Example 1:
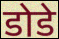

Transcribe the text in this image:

डोडे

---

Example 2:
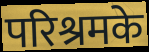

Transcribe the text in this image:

परिश्रमके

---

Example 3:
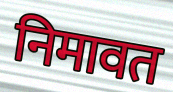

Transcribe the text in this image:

निमावत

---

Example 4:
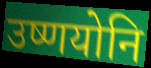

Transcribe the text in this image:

उष्णयोनि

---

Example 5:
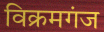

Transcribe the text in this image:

विक्रमगंज